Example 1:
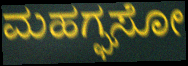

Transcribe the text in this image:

ಮಹಗ್ಘಸೋ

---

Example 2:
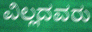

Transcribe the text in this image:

ವಿಲ್ಲದವರು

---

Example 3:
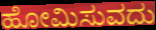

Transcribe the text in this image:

ಹೋಮಿಸುವದು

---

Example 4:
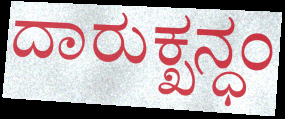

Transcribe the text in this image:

ದಾರುಕ್ಖನ್ಧಂ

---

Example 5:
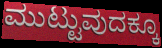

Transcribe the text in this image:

ಮುಟ್ಟುವುದಕ್ಕೂ